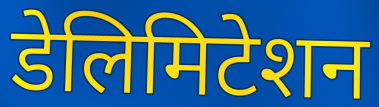
डेलिमिटेशन